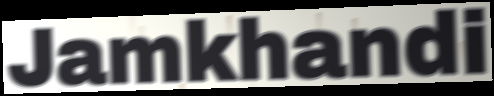
Jamkhandi